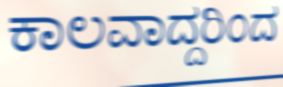
ಕಾಲವಾದ್ದರಿಂದ